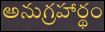
అనుగ్రహార్థం